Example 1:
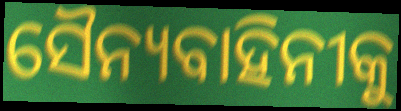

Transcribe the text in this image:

ସୈନ୍ୟବାହିନୀକୁ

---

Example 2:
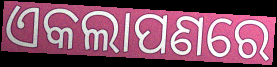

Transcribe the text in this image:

ଏକଲାପଣରେ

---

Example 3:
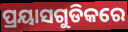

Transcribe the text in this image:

ପ୍ରୟାସଗୁଡିକରେ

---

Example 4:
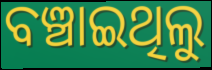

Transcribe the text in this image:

ବଞ୍ଚାଇଥିଲୁ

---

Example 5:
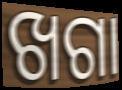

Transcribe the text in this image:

ଖଗା